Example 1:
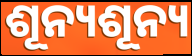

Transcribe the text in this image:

ଶୂନ୍ୟଶୂନ୍ୟ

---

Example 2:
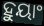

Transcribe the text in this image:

ହୁୟାଂ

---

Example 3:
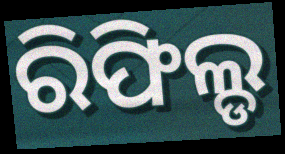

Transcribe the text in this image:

ରିଫିଲ୍ଡ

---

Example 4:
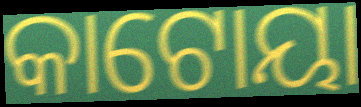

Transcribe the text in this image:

କାଟୋୟା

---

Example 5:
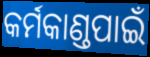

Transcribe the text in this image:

କର୍ମକାଣ୍ଡପାଇଁ